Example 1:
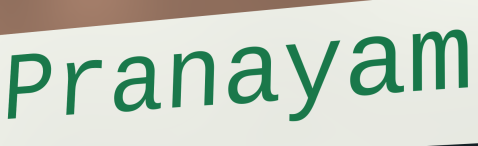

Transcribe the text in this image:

Pranayam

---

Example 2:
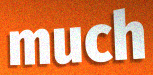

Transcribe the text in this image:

much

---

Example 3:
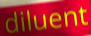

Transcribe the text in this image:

diluent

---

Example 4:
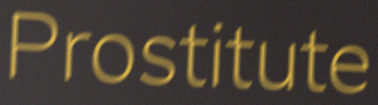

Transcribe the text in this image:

Prostitute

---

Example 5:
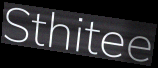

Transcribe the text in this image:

Sthitee